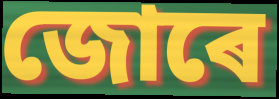
জোৰে